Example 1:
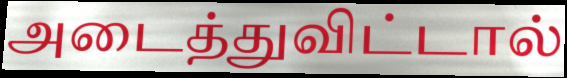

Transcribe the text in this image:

அடைத்துவிட்டால்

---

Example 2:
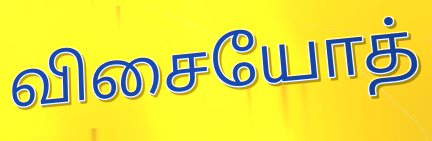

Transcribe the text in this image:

விசையோத்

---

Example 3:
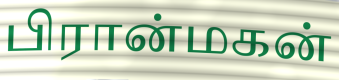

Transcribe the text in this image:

பிரான்மகன்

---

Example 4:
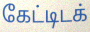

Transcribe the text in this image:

கேட்டிடக்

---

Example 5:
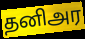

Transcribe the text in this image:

தனிஅர